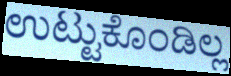
ಉಟ್ಟುಕೊಂಡಿಲ್ಲ